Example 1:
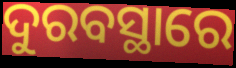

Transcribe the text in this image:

ଦୁରବସ୍ଥାରେ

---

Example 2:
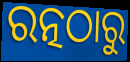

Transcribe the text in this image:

ରତ୍ନଠାରୁ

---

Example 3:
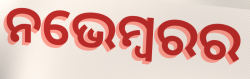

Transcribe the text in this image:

ନଭେମ୍ବରର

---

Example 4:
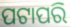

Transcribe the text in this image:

ପଟାପରି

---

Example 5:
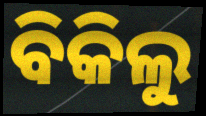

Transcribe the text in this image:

ବିକିଲୁ